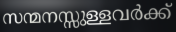
സന്മനസ്സുള്ളവർക്ക്